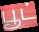
பூட்